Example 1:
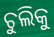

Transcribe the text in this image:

ଚୁଲିକୁ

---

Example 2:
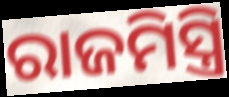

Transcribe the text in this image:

ରାଜମିସ୍ତ୍ରି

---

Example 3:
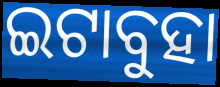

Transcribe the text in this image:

ଇଟାବୁହା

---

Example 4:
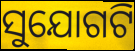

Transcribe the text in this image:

ସୁଯୋଗଟି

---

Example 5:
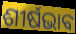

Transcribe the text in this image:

ଶୀର୍ଷଭାବ